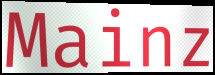
Mainz